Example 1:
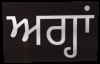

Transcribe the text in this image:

ਅਗ੍ਹਾਂ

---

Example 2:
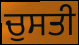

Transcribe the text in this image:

ਚੁਸਤੀ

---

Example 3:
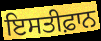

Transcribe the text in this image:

ਇਸਤੀਫ਼ਾਨ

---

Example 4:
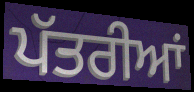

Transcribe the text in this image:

ਪੱਤਰੀਆਂ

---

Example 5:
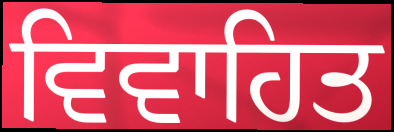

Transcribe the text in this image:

ਵਿਵਾਹਿਤ